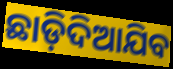
ଛାଡ଼ିଦିଆଯିବ